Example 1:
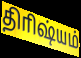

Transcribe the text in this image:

திரிஷ்யம்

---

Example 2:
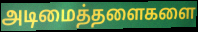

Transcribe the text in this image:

அடிமைத்தளைகளை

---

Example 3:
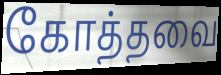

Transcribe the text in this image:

கோத்தவை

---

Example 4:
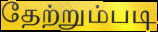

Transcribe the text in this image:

தேற்றும்படி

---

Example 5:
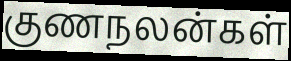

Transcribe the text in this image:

குணநலன்கள்